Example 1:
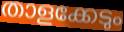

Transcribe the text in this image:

താളക്കേടും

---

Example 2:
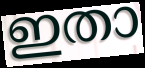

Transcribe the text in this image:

ഇതാ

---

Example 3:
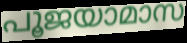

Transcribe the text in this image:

പൂജയാമാസ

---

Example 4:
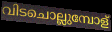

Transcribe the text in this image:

വിടചൊല്ലുമ്പോള്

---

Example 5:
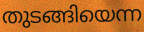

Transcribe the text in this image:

തുടങ്ങിയെന്ന